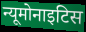
न्यूमोनाइटिस